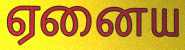
ஏனைய